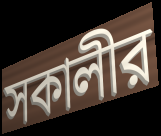
সকালীর